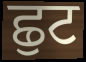
ਛੁਟ